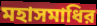
মহাসমাধির